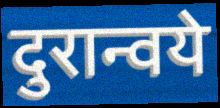
दुरान्वये